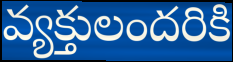
వ్యక్తులందరికి